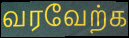
வரவேற்க